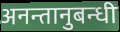
अनन्तानुबन्धी